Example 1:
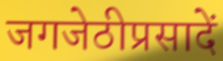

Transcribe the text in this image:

जगजेठीप्रसादें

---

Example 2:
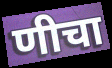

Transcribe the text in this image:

णीचा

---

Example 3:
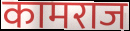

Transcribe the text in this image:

कामराज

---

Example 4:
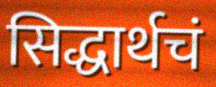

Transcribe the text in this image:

सिद्धार्थचं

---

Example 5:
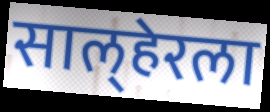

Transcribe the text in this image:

साल्हेरला